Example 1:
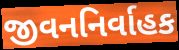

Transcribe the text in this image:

જીવનનિર્વાહક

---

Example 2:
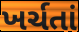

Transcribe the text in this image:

ખર્ચતાં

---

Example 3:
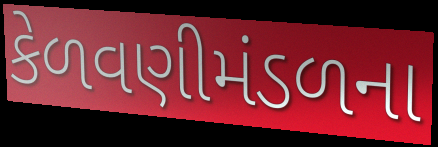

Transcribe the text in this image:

કેળવણીમંડળના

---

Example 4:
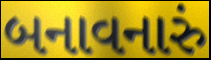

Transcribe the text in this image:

બનાવનારું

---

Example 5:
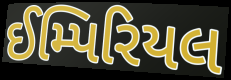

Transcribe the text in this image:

ઈમ્પિરિયલ